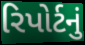
રિપોર્ટનું